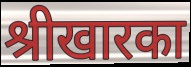
श्रीखारका